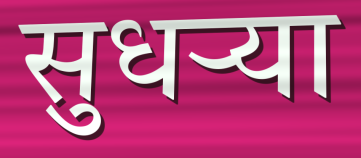
सुधर्‍या